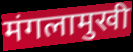
मंगलामुखी